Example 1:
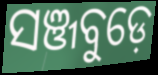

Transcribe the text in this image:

ସଞ୍ଜବୁଡ଼େ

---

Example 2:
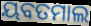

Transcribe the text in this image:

ୟବତମାଲ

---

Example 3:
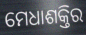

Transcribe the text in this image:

ମେଧାଶକ୍ତିର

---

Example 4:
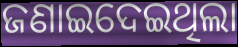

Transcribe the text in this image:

ଜଣାଇଦେଇଥିଲା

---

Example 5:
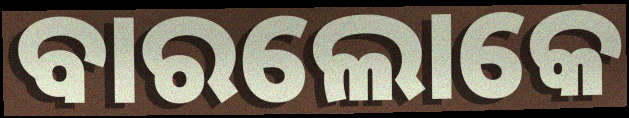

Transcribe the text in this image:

ବାରଲୋକେ